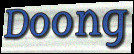
Doong